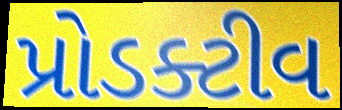
પ્રોડક્ટીવ